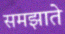
समझाते